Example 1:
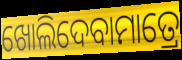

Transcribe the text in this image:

ଖୋଲିଦେବାମାତ୍ରେ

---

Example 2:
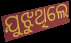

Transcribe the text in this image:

ଯୁଝୁଥିଲେ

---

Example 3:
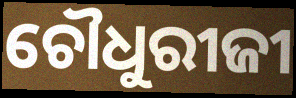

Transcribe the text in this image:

ଚୌଧୁରୀଜୀ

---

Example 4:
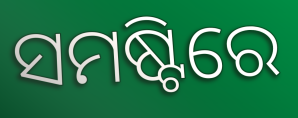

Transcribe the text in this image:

ସମଷ୍ଟିରେ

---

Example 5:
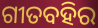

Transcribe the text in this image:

ଗୀତବହିର